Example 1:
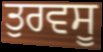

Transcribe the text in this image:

ਤੁਰਵਸੂ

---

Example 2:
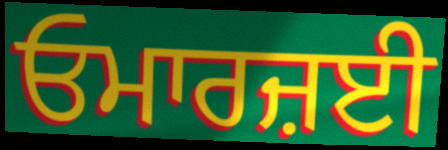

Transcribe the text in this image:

ਓਮਾਰਜ਼ਈ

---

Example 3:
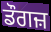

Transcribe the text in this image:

ਡੌਗਜ਼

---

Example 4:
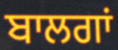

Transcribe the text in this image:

ਬਾਲਗਾਂ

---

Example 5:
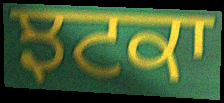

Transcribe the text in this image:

ਝਟਕਾ